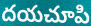
దయచూపి